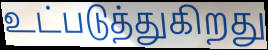
உட்படுத்துகிறது